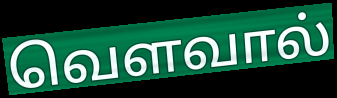
வெளவால்